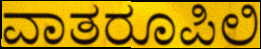
ವಾತರೂಪಿಲಿ